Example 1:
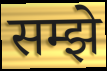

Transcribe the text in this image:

सम्झे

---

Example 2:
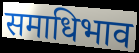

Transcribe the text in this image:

समाधिभाव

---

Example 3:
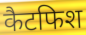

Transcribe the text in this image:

कैटफिश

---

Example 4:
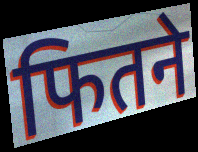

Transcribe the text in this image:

फितने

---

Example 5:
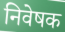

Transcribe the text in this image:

निवेषक